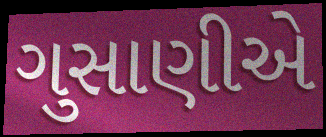
ગુસાણીએ